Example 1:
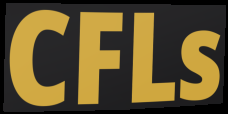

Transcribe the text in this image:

CFLs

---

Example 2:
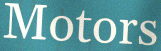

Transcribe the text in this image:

Motors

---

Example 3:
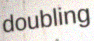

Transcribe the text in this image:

doubling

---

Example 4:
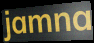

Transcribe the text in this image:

jamna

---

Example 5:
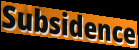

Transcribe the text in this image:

Subsidence